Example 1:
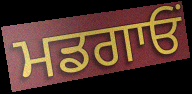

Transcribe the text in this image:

ਮਡਗਾਓਂ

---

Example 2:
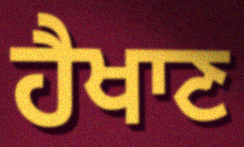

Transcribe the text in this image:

ਹੈਖਾਣ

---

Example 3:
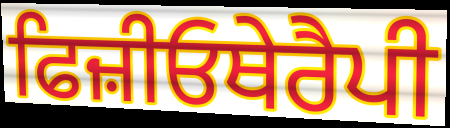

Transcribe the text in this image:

ਫਿਜ਼ੀਓਥੇਰੈਪੀ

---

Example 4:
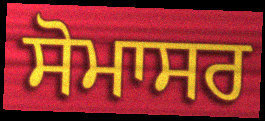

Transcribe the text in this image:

ਸੋਮਾਸਰ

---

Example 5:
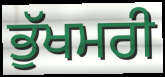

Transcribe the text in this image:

ਭੁੱਖਮਰੀ